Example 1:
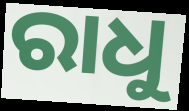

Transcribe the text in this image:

ରାଧୁ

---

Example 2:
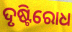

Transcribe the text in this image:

ଦୃଷ୍ଟିରୋଧ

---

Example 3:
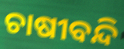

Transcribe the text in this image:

ଚାଷୀବନ୍ଦି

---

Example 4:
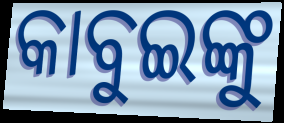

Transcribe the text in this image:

କାବୁଇଙ୍କୁ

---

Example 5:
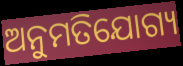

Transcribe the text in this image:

ଅନୁମତିଯୋଗ୍ୟ